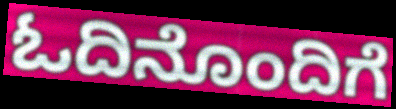
ಓದಿನೊಂದಿಗೆ